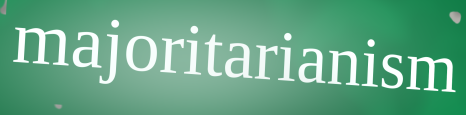
majoritarianism